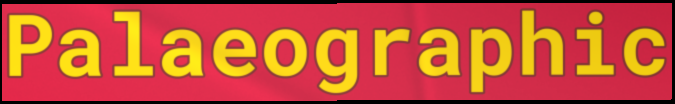
Palaeographic